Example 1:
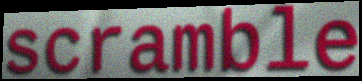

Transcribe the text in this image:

scramble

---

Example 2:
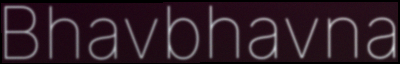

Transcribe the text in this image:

Bhavbhavna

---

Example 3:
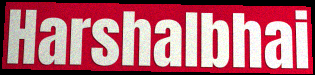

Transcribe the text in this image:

Harshalbhai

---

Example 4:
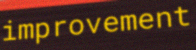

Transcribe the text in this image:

improvement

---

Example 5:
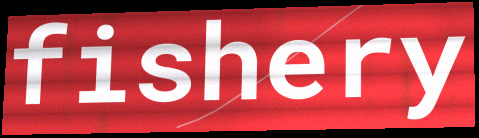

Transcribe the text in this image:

fishery